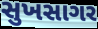
સુખસાગર